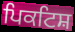
ਪਿਕਟਿਸ਼